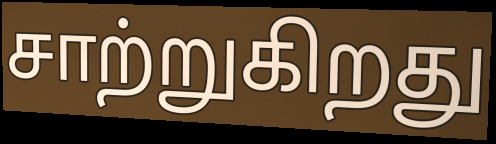
சாற்றுகிறது